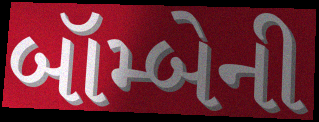
બૉમ્બેની